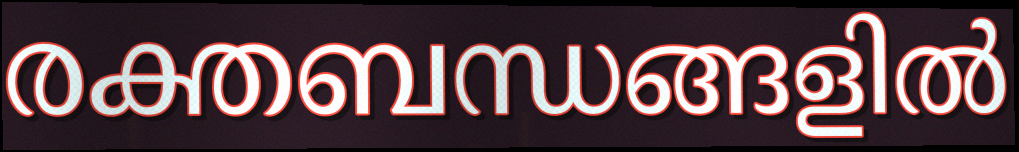
രക്തബന്ധങ്ങളിൽ